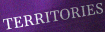
TERRITORIES